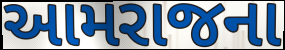
આમરાજના